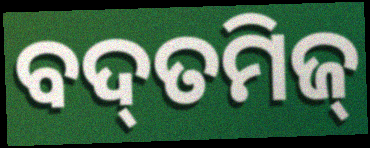
ବଦ୍‌ତମିଜ୍